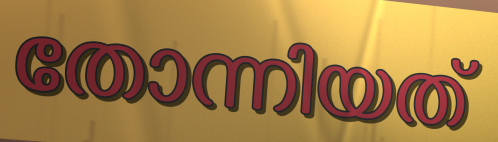
തോന്നിയത്